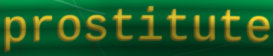
prostitute